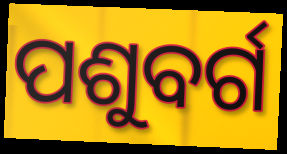
ପଶୁବର୍ଗ